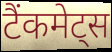
टैंकमेट्स